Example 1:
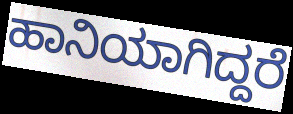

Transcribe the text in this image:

ಹಾನಿಯಾಗಿದ್ದರೆ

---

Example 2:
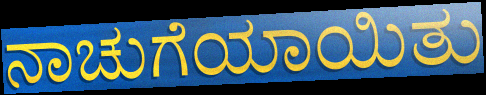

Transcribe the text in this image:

ನಾಚುಗೆಯಾಯಿತು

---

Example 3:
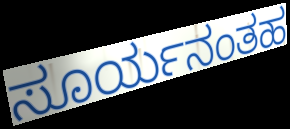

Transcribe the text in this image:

ಸೂರ್ಯನಂತಹ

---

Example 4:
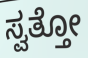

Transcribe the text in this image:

ಸ್ವತ್ತೋ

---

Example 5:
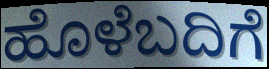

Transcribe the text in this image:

ಹೊಳೆಬದಿಗೆ